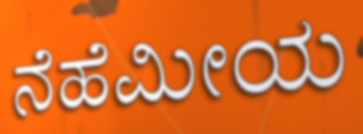
ನೆಹೆಮೀಯ